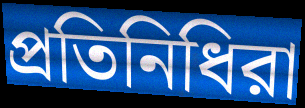
প্রতিনিধিরা